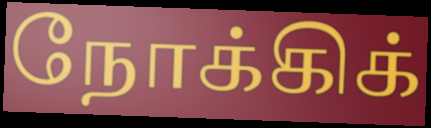
நோக்கிக்